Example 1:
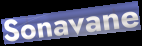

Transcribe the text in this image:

Sonavane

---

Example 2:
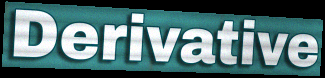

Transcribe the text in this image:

Derivative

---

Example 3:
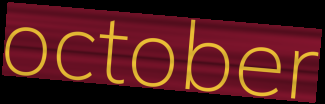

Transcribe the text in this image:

october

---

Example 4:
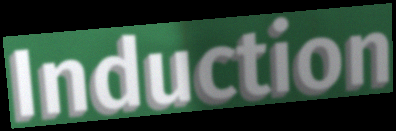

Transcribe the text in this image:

Induction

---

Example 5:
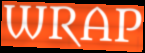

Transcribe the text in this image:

WRAP